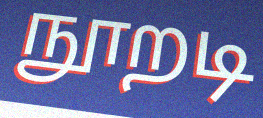
நூறடி